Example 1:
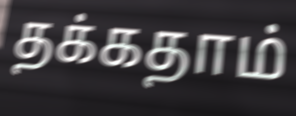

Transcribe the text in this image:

தக்கதாம்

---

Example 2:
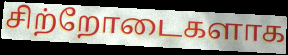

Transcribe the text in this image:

சிற்றோடைகளாக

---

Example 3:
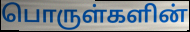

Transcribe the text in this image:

பொருள்களின்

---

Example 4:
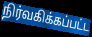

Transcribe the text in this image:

நிர்வகிக்கப்பட்ட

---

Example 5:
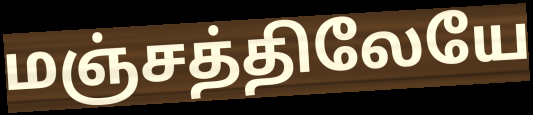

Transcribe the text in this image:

மஞ்சத்திலேயே